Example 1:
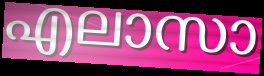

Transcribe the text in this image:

എലാസാ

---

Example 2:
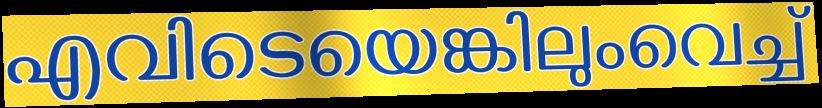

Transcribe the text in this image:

എവിടെയെങ്കിലുംവെച്ച്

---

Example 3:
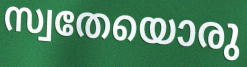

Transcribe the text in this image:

സ്വതേയൊരു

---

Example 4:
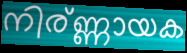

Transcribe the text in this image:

നിര്ണ്ണായക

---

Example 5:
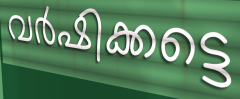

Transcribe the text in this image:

വർഷിക്കട്ടെ